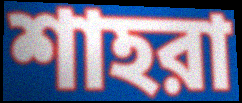
শাহরা